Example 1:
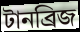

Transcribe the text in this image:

টানব্রিজ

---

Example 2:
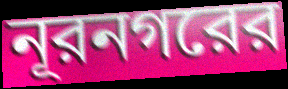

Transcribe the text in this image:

নূরনগরের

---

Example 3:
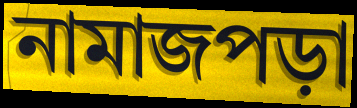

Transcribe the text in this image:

নামাজপড়া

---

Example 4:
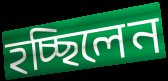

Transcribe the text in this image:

হচ্ছিলেন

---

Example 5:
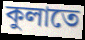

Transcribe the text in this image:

কুলাতে